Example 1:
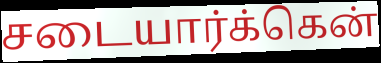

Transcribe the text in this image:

சடையார்க்கென்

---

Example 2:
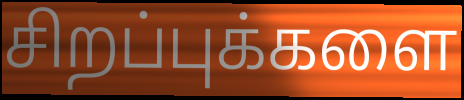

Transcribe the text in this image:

சிறப்புக்களை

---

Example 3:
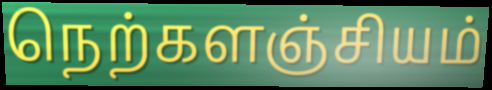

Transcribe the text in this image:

நெற்களஞ்சியம்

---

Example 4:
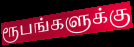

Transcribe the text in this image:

ரூபங்களுக்கு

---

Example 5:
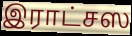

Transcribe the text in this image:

இராட்சஸ